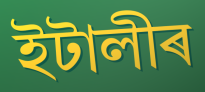
ইটালীৰ